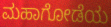
ಮಹಾಗೋಡೆಯ